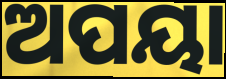
ଅପୟା